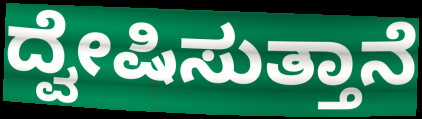
ದ್ವೇಷಿಸುತ್ತಾನೆ